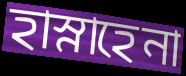
হাস্নাহেনা